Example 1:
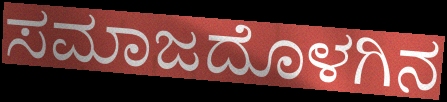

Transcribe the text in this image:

ಸಮಾಜದೊಳಗಿನ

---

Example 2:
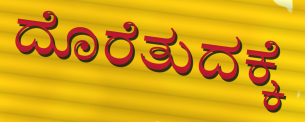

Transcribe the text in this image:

ದೊರೆತುದಕ್ಕೆ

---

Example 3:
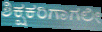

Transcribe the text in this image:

ಶಿಕ್ಷಕರಿಗಾಗಲೀ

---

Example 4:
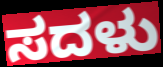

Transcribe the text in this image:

ಸದಳು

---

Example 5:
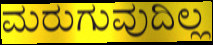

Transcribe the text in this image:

ಮರುಗುವುದಿಲ್ಲ